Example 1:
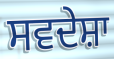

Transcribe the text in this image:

ਸਵਦੇਸ਼ਾ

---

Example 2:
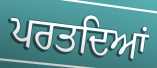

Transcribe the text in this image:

ਪਰਤਦਿਆਂ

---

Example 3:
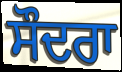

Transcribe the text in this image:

ਸੌਦਰਾ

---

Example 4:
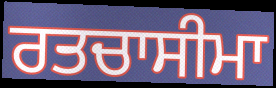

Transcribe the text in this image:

ਰਤਚਾਸੀਮਾ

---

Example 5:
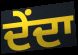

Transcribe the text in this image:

ਦੇਂਦਾ